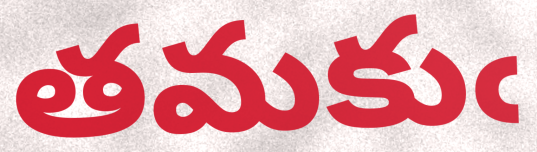
తమకుఁ